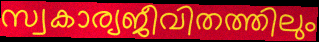
സ്വകാര്യജീവിതത്തിലും